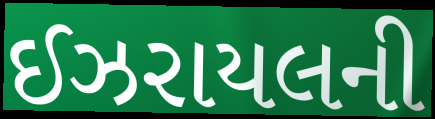
ઈઝરાયલની